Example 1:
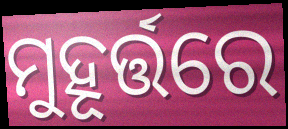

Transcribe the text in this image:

ମୁହୂର୍ତ୍ତରେ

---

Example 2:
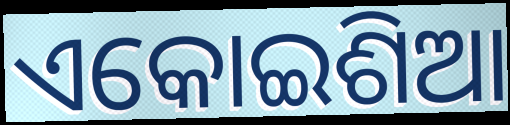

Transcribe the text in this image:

ଏକୋଇଶିଆ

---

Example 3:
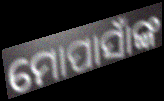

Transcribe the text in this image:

ମୋପାସାଁଙ୍କ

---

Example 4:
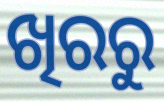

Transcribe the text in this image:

ଖିରରୁ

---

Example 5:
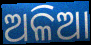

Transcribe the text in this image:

ଅଳିଆ